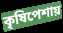
কৃষিপেশায়